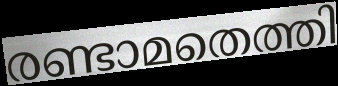
രണ്ടാമതെത്തി